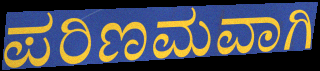
ಪರಿಣಮವಾಗಿ